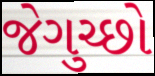
જેગુચ્છો